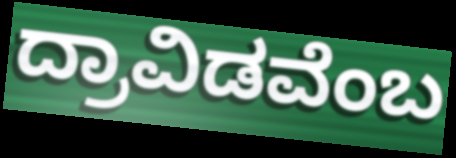
ದ್ರಾವಿಡವೆಂಬ